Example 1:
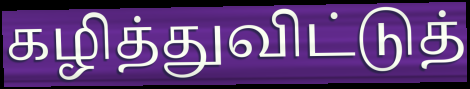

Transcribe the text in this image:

கழித்துவிட்டுத்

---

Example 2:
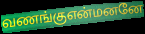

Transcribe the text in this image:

வணங்குஎன்மனனே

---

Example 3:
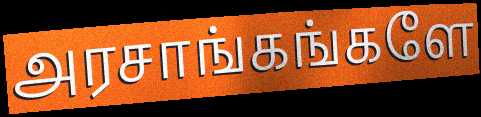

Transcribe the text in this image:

அரசாங்கங்களே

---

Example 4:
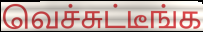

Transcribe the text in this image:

வெச்சுட்டீங்க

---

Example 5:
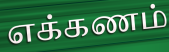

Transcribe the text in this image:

எக்கணம்